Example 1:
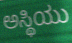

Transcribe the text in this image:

ಅಸ್ಥಿಯು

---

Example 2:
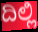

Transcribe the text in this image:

ದಿಲ್ಲಿ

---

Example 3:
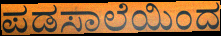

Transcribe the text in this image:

ಪಡಸಾಲೆಯಿಂದ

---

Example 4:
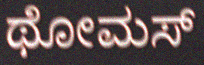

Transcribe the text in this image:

ಥೋಮಸ್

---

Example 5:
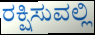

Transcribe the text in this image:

ರಕ್ಷಿಸುವಲ್ಲಿ